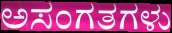
ಅಸಂಗತಗಳು